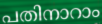
പതിനാറാം